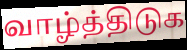
வாழ்த்திடுக